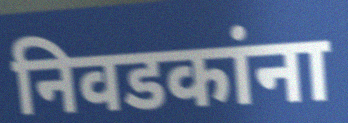
निवडकांना